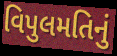
વિપુલમતિનું